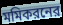
মমিকরনের